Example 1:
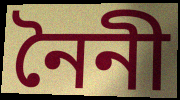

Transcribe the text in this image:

নৈনী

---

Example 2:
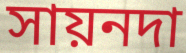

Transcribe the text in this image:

সায়নদা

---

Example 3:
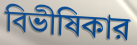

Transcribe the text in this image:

বিভীষিকার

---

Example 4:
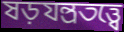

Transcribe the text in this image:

ষড়যন্ত্রতত্ত্বে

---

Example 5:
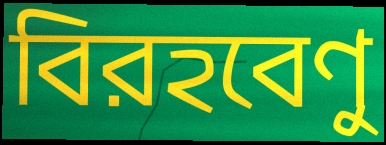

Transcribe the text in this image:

বিরহবেণু